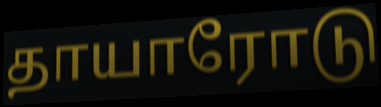
தாயாரோடு